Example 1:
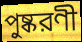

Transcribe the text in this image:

পুষ্করণী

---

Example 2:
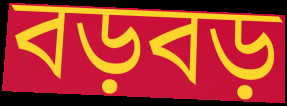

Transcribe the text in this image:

বড়বড়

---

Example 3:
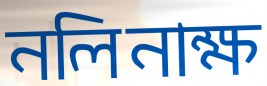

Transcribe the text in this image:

নলিনাক্ষ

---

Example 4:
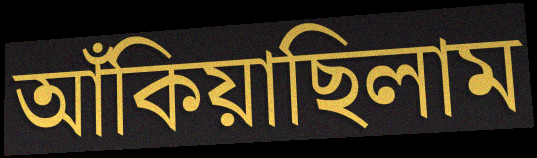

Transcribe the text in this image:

আঁকিয়াছিলাম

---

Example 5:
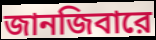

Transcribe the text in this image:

জানজিবারে